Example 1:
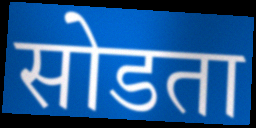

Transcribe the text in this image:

सोडता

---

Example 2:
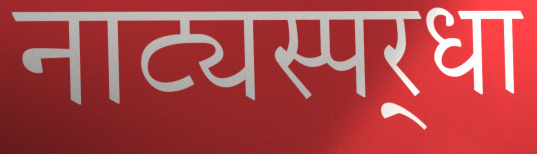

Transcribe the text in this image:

नाट्यस्पर्धा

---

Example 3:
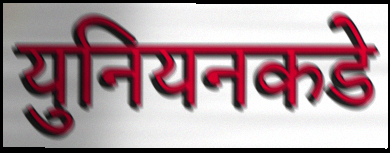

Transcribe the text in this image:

युनियनकडे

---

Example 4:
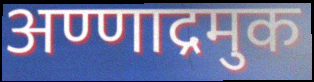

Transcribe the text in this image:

अण्णाद्रमुक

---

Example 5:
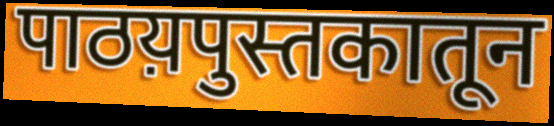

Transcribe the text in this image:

पाठय़पुस्तकातून